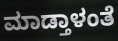
ಮಾಡ್ತಾಳಂತೆ